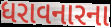
ધરાવનારના